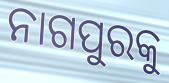
ନାଗପୁରକୁ